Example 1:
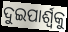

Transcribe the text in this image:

ଦୁଇପାର୍ଶ୍ବକୁ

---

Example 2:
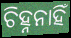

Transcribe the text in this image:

ଚିହ୍ନନାହିଁ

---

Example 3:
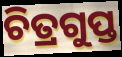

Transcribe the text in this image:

ଚିତ୍ରଗୁପ୍ତ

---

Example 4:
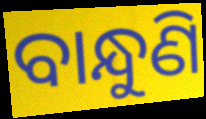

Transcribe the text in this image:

ବାନ୍ଧୁଣି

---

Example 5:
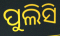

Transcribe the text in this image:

ପୁଲିସି